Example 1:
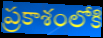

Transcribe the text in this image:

ప్రకాశంలోకి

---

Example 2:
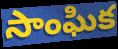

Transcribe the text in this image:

సాంఘిక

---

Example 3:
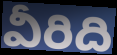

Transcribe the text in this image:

వీరిది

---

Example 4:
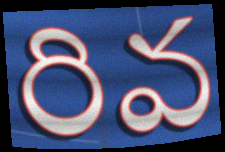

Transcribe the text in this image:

రివ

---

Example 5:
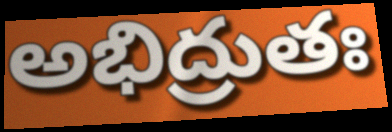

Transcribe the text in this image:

అభిద్రుతః